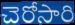
చెరోసారి